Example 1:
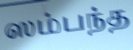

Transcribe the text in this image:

ஸம்பந்த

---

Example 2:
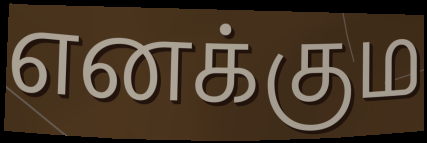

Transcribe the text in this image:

எனக்கும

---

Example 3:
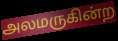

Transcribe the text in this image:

அலமருகின்ற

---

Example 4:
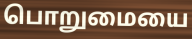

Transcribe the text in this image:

பொறுமையை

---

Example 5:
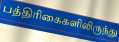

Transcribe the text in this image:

பத்திரிகைகளிலிருந்து